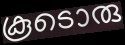
കൂടൊരു